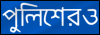
পুলিশেরও